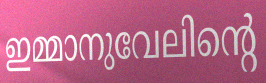
ഇമ്മാനുവേലിന്റെ